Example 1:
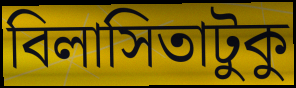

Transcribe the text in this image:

বিলাসিতাটুকু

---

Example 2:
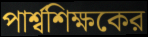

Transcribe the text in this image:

পার্শ্বশিক্ষকের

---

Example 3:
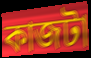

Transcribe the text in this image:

কাজটা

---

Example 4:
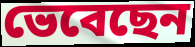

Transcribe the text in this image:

ভেবেছেন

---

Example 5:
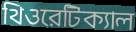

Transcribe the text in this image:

থিওরেটিক্যাল